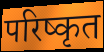
परिष्कृत